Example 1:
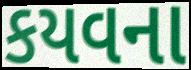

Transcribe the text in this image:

કયવના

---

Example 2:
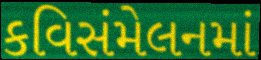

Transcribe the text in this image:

કવિસંમેલનમાં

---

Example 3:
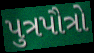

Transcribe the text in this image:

પુત્રપૌત્રો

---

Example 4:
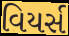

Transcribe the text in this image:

વિયર્સ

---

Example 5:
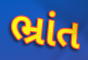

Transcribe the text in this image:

ભ્રાંત